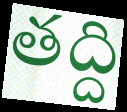
తద్ది